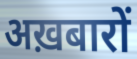
अख़बारों